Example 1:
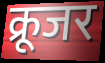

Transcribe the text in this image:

क्रूजर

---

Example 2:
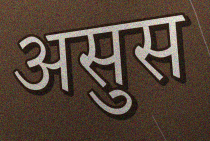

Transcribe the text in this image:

असुस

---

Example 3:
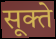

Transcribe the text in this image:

सूक्ते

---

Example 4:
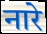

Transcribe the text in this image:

नारे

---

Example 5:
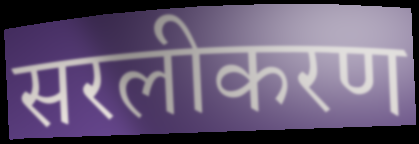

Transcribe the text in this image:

सरलीकरण